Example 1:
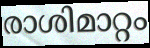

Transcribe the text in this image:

രാശിമാറ്റം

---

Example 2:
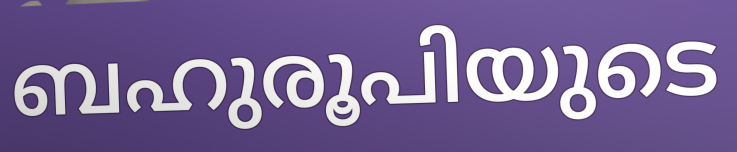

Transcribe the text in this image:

ബഹുരൂപിയുടെ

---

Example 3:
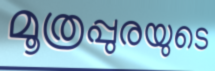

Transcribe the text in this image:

മൂത്രപ്പുരയുടെ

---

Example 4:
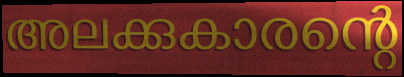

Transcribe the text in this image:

അലക്കുകാരന്റെ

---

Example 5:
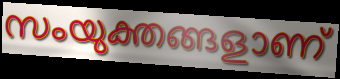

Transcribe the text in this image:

സംയുക്തങ്ങളാണ്